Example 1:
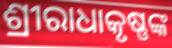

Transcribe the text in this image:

ଶ୍ରୀରାଧାକୃଷ୍ଣଙ୍କ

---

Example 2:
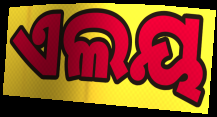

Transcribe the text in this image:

ଏଲୟ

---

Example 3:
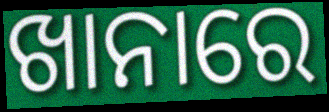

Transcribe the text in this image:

ଖାନାରେ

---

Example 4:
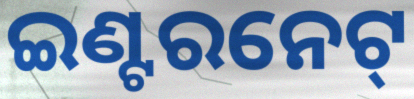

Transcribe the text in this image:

ଇଣ୍ଟରନେଟ୍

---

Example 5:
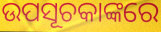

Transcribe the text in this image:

ଉପସୂଚକାଙ୍କରେ